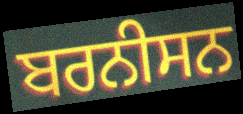
ਬਰਨੀਸਨ